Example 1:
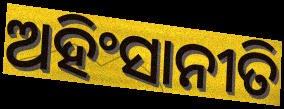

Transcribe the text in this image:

ଅହିଂସାନୀତି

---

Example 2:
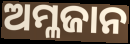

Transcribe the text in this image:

ଅମ୍ଳଜାନ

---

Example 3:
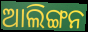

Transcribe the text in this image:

ଆଲିଙ୍ଗନ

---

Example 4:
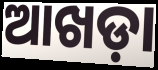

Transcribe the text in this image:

ଆଖଡ଼ା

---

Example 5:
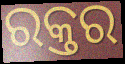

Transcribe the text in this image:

ରକ୍ତର